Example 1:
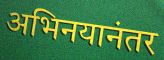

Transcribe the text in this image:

अभिनयानंतर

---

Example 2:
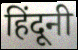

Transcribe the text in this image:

हिंदूनी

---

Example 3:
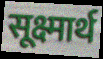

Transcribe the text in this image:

सूक्ष्मार्थ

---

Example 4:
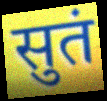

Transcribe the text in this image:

सुतं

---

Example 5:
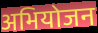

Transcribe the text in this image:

अभियोजन